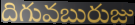
దిగువబురుజు